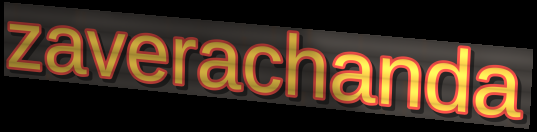
zaverachanda